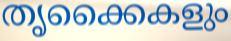
തൃക്കൈകളും